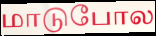
மாடுபோல